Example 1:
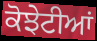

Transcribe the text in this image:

ਕੋਝੇਟੀਆਂ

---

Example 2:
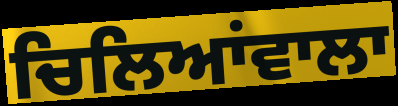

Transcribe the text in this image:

ਚਿਲਿਆਂਵਾਲਾ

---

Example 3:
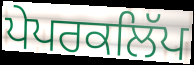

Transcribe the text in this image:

ਪੇਪਰਕਲਿੱਪ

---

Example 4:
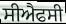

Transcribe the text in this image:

ਸੀਐਫਸੀ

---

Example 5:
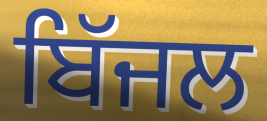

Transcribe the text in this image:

ਬਿੱਜਲ